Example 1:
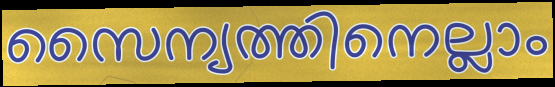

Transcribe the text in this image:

സൈന്യത്തിനെല്ലാം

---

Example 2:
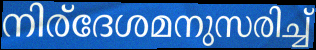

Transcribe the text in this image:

നിര്ദേശമനുസരിച്ച്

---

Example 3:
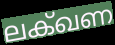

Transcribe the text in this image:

ലക്ഖണ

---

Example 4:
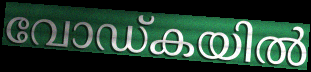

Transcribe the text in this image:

വോഡ്കയിൽ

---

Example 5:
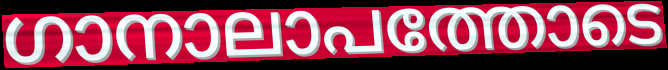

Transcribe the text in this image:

ഗാനാലാപത്തോടെ